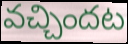
వచ్చిందట